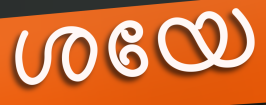
ശയേ